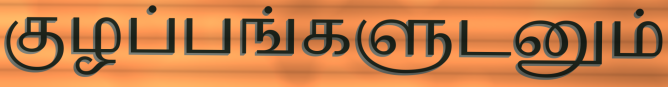
குழப்பங்களுடனும்